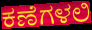
ಕಣೆಗಳಲಿ